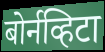
बोर्नव्हिटा